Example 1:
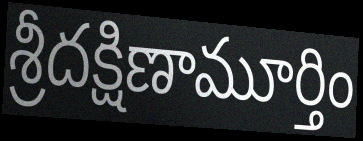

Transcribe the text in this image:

శ్రీదక్షిణామూర్తిం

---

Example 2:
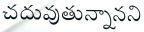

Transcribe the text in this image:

చదువుతున్నానని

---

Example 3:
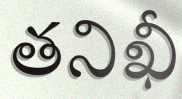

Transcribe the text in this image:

తనిఖీ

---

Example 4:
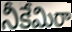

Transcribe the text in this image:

నీకేమిరా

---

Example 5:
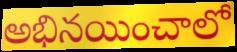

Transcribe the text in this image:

అభినయించాలో